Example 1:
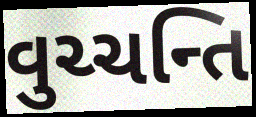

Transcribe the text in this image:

વુચ્ચન્તિ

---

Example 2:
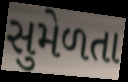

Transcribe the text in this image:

સુમેળતા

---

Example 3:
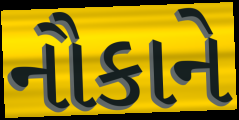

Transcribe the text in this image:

નૌકાને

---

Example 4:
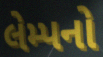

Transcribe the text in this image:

લેમ્પનો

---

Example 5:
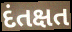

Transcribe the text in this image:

દંતક્ષત